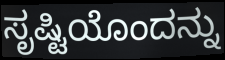
ಸೃಷ್ಟಿಯೊಂದನ್ನು